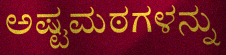
ಅಷ್ಟಮಠಗಳನ್ನು